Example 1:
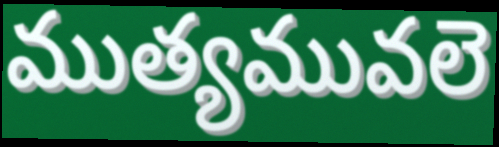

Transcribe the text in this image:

ముత్యమువలె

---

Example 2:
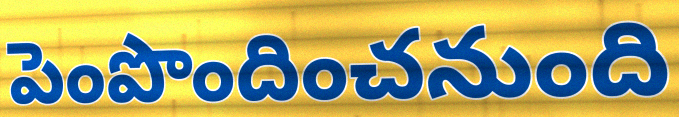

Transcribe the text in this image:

పెంపొందించనుంది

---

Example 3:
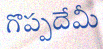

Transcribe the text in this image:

గొప్పదేమీ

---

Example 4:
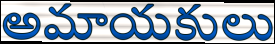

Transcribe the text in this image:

అమాయకులు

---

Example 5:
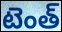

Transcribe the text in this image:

టెంత్